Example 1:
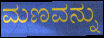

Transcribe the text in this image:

ಮಣವನ್ನು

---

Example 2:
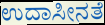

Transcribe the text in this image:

ಉದಾಸೀನತೆ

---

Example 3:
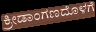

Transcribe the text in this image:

ಕ್ರೀಡಾಂಗಣದೊಳಗೆ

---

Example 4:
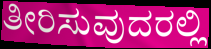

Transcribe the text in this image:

ತೀರಿಸುವುದರಲ್ಲಿ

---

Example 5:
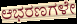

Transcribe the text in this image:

ಆಭರಣಗಳೇ